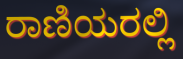
ರಾಣಿಯರಲ್ಲಿ